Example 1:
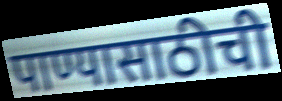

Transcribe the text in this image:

पाण्यासाठीची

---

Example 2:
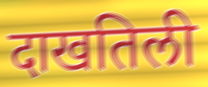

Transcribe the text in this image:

दाखतिली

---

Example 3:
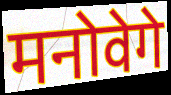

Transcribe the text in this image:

मनोवेगे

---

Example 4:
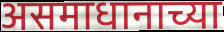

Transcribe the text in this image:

असमाधानाच्या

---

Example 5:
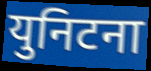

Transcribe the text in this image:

युनिटना